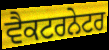
ਵੈਕਟਰਨੇਟਰ